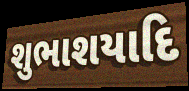
શુભાશયાદિ